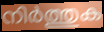
നിർത്തുക